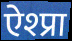
ऐश्प्रा